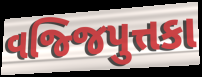
વજ્જિપુત્તકા